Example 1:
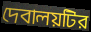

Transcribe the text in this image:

দেবালয়টির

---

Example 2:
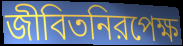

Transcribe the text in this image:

জীবিতনিরপেক্ষ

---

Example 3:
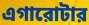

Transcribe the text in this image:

এগারোটার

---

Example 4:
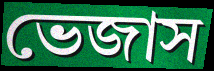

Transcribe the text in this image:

ভেজাস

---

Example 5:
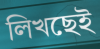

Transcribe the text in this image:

লিখছেই